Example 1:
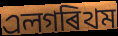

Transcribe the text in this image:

এলগৰিথম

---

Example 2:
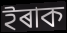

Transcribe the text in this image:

ইৰাক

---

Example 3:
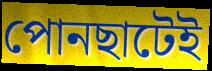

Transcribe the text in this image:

পোনছাটেই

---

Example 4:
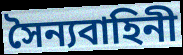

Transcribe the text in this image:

সৈন্যবাহিনী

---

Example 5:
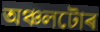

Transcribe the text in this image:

অঞ্চলটোৰ